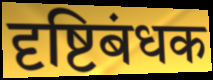
दृष्टिबंधक